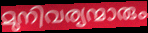
മുനിവര്യന്മാരും